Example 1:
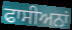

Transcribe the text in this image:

ਫਾਸੀਅਨਾਂ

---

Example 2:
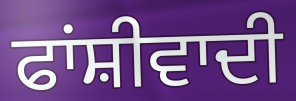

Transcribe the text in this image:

ਫਾਂਸ਼ੀਵਾਦੀ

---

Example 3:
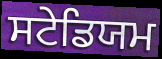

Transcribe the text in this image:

ਸਟੇਡਿਯਮ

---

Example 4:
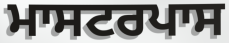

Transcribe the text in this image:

ਮਾਸਟਰਪਾਸ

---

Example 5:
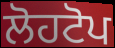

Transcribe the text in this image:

ਲੋਹਟੋਪ